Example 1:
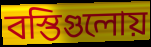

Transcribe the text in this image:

বস্তিগুলোয়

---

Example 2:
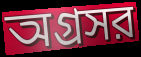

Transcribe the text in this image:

অগ্রসর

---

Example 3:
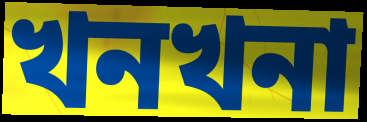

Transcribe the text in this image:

খনখনা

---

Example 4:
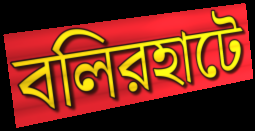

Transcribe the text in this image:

বলিরহাটে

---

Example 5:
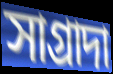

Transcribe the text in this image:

সাগ্রাদা